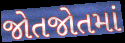
જોતજોતમાં